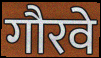
गौरवे